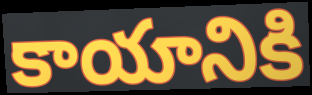
కాయానికి